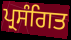
ਪ੍ਰਸੰਗਿਤ